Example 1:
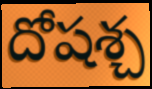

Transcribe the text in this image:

దోషశ్చ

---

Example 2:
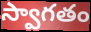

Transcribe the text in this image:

స్వాగతం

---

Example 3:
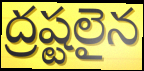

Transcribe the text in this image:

ద్రష్టలైన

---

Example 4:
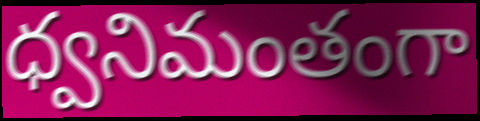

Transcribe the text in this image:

ధ్వనిమంతంగా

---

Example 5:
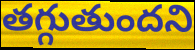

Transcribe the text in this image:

తగ్గుతుందని